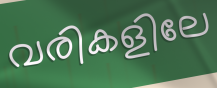
വരികളിലേ